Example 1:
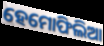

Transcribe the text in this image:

ହେମୋଫିଲିଆ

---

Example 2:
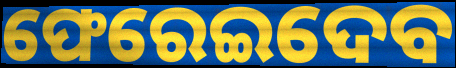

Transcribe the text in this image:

ଫେରେଇଦେବ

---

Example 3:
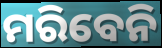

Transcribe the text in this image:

ମରିବେନି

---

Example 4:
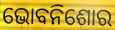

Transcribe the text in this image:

ଭୋବନିଶୋର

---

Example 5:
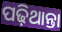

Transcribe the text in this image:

ପଢ଼ିଥାନ୍ତା